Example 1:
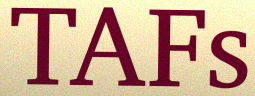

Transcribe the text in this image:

TAFs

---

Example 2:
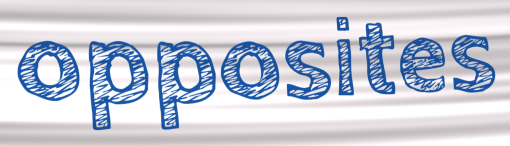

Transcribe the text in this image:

opposites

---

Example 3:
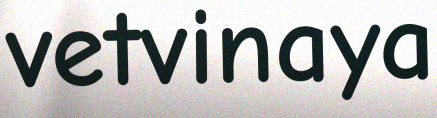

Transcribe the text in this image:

vetvinaya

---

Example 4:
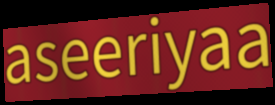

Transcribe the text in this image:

aseeriyaa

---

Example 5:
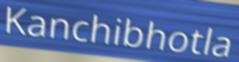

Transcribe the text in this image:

Kanchibhotla